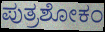
ಪುತ್ರಶೋಕಂ